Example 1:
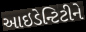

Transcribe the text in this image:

આઇડેન્ટિટીને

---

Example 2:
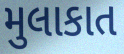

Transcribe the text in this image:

મુલાકાત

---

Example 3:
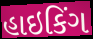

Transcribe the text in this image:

હાઇકિંગ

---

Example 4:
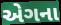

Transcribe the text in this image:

એગના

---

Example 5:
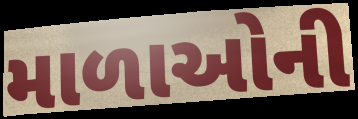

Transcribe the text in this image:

માળાઓની